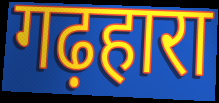
गढ़हारा